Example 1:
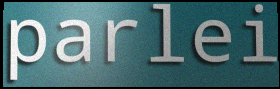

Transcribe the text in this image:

parlei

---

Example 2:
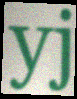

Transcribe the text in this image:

yj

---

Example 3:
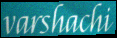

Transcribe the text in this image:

varshachi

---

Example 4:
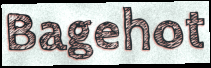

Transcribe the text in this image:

Bagehot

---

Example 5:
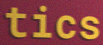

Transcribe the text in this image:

tics